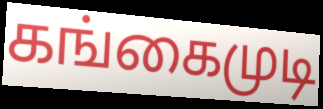
கங்கைமுடி